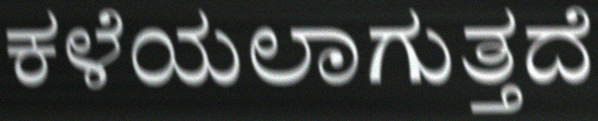
ಕಳೆಯಲಾಗುತ್ತದೆ